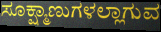
ಸೂಕ್ಷ್ಮಾಣುಗಳಲ್ಲಾಗುವ